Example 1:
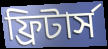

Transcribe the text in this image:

ফ্রিটার্স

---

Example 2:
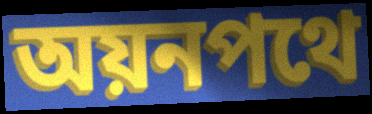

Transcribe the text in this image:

অয়নপথে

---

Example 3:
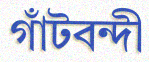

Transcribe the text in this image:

গাঁটবন্দী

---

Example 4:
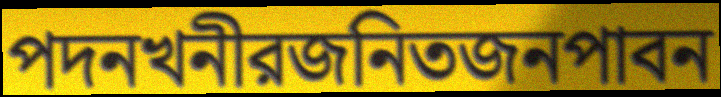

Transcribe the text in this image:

পদনখনীরজনিতজনপাবন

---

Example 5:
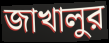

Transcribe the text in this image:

জাখালুর